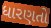
ધારણતો